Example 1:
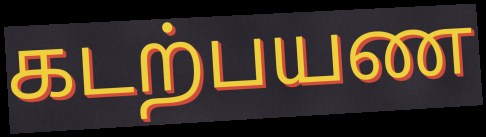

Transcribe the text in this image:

கடற்பயண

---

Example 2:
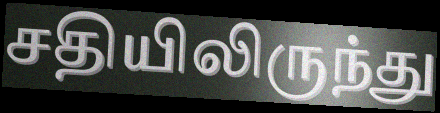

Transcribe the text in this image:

சதியிலிருந்து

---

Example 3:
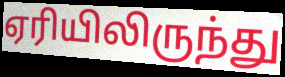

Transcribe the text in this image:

ஏரியிலிருந்து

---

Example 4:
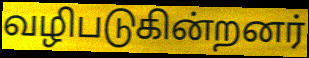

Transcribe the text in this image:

வழிபடுகின்றனர்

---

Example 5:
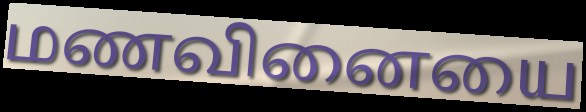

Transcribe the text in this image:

மணவினையை